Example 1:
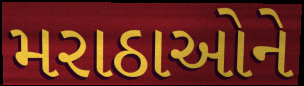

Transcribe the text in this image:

મરાઠાઓને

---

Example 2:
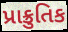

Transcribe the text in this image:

પ્રાક્રુતિક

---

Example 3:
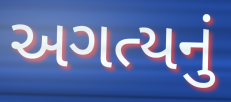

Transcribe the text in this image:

અગત્યનું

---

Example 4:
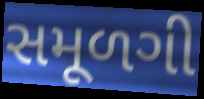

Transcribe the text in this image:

સમૂળગી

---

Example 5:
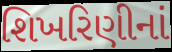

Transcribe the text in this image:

શિખરિણીનાં